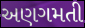
અણગમતી